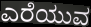
ಎರೆಯುವ